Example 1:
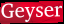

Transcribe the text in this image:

Geyser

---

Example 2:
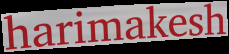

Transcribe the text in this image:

harimakesh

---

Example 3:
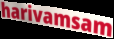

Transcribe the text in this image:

harivamsam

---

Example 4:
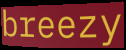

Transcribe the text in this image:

breezy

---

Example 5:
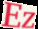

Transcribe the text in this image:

Ez